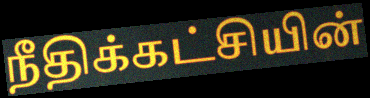
நீதிக்கட்சியின்